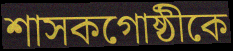
শাসকগোষ্ঠীকে